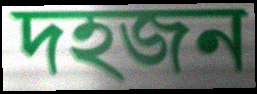
দহজন